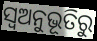
ସ୍ୱଅନୁଭୂତିରୁ